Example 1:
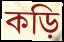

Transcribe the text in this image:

কড়ি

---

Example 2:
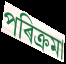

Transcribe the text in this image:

পৰিক্ৰমা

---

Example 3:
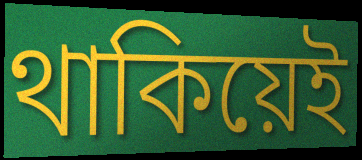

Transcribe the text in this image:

থাকিয়েই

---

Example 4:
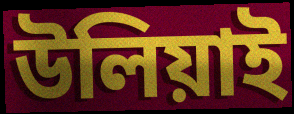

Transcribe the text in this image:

উলিয়াই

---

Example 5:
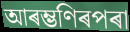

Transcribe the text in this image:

আৰম্ভণিৰপৰা